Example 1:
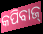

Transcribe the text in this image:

କପିବାଜ୍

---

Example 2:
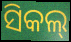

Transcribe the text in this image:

ସିକଲ୍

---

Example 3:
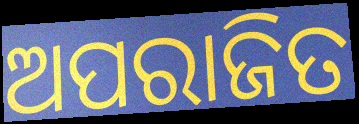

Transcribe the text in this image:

ଅପରାଜିତ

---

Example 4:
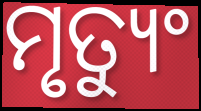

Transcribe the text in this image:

ମୃତ୍ୟୁଂ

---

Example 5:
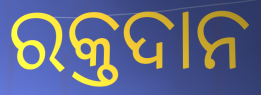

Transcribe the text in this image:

ରକ୍ତଦାନ